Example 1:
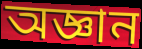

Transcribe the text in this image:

অজ্ঞান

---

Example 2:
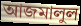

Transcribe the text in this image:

আজমালুল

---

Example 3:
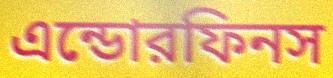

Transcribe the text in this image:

এন্ডোরফিনস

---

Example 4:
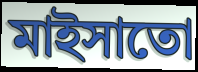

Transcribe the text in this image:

মাইসাতো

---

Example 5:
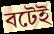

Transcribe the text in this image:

বটেই